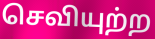
செவியுற்ற